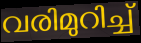
വരിമുറിച്ച്